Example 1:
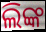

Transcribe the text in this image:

ଲିଙ୍କ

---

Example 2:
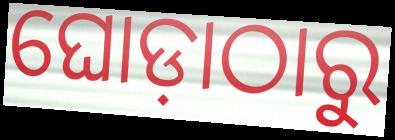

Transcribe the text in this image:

ଘୋଡ଼ାଠାରୁ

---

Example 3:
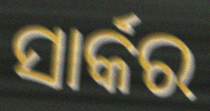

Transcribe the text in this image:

ସାର୍କର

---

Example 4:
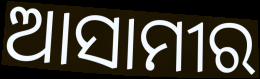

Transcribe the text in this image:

ଆସାମୀର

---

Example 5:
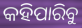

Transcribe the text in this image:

କହିପାରିବୁ